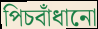
পিচবাঁধানো